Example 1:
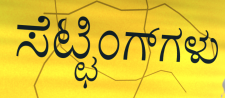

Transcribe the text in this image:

ಸೆಟ್ಟಿಂಗ್‌ಗಳು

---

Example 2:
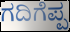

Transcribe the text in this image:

ಗದಿಗೆಪ್ಪ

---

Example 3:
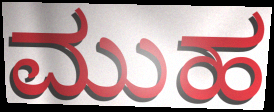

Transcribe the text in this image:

ಮುಹ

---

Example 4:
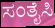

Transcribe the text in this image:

ಸಂತೈಸಿ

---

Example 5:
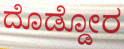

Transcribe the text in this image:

ದೊಡ್ಡೋರ